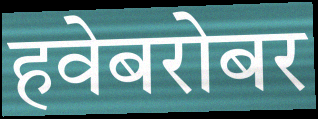
हवेबरोबर